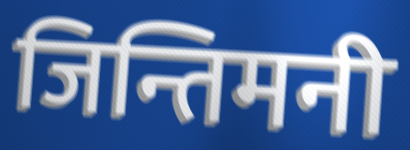
जिन्तिमनी